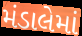
મંડાલેમાં